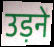
उड़ने